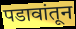
पडावांतून